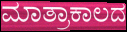
ಮಾತ್ರಾಕಾಲದ